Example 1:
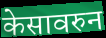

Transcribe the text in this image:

केसावरुन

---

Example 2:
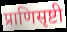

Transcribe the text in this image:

प्राणिसृष्टी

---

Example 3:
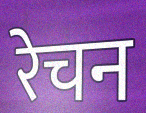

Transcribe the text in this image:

रेचन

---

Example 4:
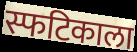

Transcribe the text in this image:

स्फटिकाला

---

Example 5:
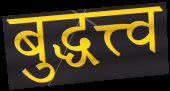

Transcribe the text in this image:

बुद्धत्त्व